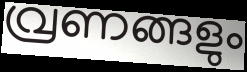
വ്രണങ്ങളും